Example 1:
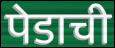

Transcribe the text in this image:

पेडाची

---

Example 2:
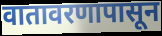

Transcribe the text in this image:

वातावरणापासून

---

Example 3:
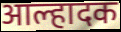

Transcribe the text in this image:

आल्हादक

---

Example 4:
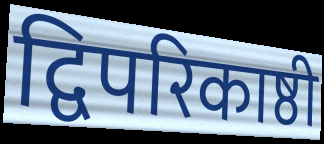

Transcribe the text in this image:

द्विपरिकाष्ठी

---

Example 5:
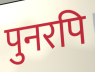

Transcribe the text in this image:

पुनरपि